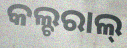
କଲ୍ଚରାଲ୍